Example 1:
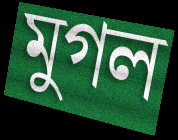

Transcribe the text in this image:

মুগল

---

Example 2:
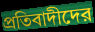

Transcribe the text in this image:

প্রতিবাদীদের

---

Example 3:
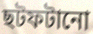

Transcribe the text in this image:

ছটফটানো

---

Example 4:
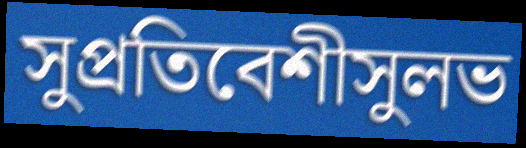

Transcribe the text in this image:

সুপ্রতিবেশীসুলভ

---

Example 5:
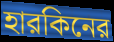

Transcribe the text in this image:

হারকিনের